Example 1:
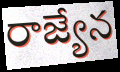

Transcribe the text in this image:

రాజ్యేన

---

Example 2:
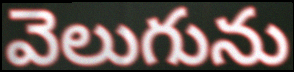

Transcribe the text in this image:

వెలుగును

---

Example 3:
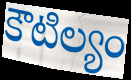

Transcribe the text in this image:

కౌటిల్యం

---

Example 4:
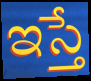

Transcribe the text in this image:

ఇస్తే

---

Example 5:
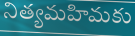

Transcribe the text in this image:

నిత్యమహిమకు